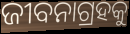
ଜୀବନାଗ୍ରହକୁ